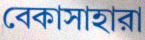
বেকাসাহারা